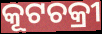
କୂଟଚକ୍ରୀ